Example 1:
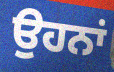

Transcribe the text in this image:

ਉਹਨਾਂ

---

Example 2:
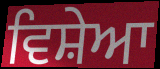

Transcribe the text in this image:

ਵਿਸ਼ੇਆ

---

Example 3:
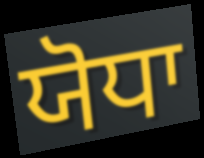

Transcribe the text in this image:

ਯੋਧਾ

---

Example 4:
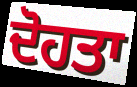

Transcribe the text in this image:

ਦੋਹਤਾ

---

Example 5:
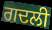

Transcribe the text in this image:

ਗਦਲੀ